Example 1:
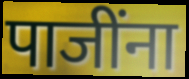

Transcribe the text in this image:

पाजींना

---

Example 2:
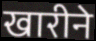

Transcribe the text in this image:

खारीने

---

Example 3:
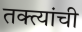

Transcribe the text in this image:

तक्त्यांची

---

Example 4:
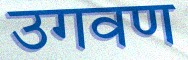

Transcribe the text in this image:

उगवण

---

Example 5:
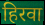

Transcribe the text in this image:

हिरवा